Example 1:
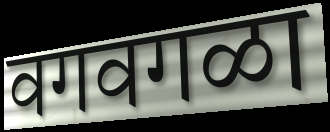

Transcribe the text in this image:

वगवगळा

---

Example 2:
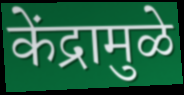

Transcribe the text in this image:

केंद्रामुळे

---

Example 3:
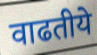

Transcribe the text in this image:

वाढतीये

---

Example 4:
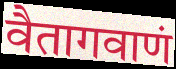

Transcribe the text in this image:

वैतागवाणं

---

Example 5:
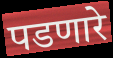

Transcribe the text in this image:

पडणारे